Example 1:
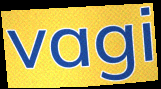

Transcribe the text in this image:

vagi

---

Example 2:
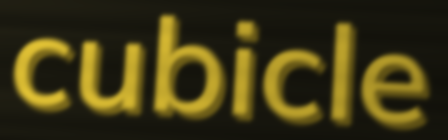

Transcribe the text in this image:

cubicle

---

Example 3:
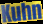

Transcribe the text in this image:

Kuhn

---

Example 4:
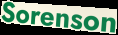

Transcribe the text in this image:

Sorenson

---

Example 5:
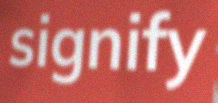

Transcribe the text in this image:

signify